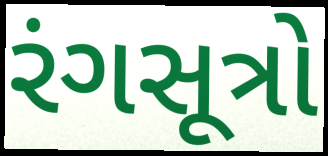
રંગસૂત્રો